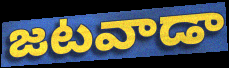
జటవాడా